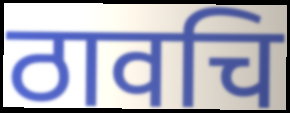
ठावचि